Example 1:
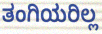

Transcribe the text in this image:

ತಂಗಿಯರಿಲ್ಲ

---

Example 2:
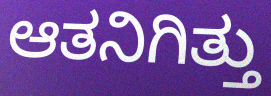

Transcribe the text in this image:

ಆತನಿಗಿತ್ತು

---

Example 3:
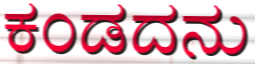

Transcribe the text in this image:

ಕಂಡದನು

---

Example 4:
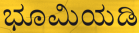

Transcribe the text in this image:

ಭೂಮಿಯಡಿ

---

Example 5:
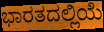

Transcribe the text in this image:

ಭಾರತದಲ್ಲಿಯೆ